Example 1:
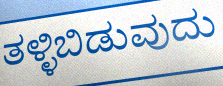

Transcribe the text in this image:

ತಳ್ಳಿಬಿಡುವುದು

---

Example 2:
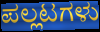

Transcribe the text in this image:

ಪಲ್ಲಟಗಳು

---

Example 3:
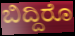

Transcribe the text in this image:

ಬಿದ್ದಿರೊ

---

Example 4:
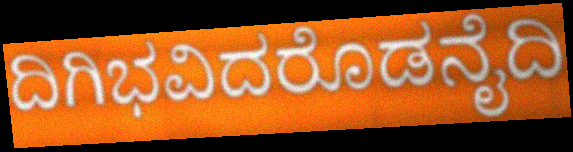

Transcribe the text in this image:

ದಿಗಿಭವಿದರೊಡನೈದಿ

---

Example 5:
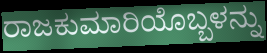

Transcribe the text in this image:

ರಾಜಕುಮಾರಿಯೊಬ್ಬಳನ್ನು